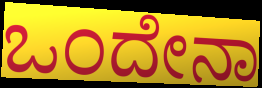
ಒಂದೇನಾ